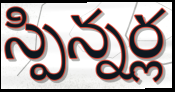
స్పిన్నర్ల